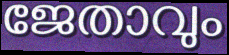
ജേതാവും